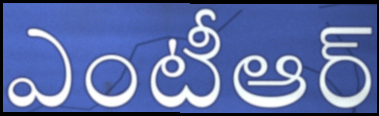
ఎంటీఆర్